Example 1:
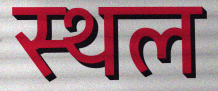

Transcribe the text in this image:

स्थल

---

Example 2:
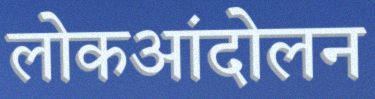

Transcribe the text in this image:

लोकआंदोलन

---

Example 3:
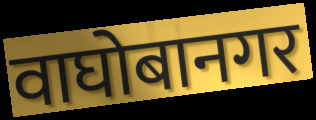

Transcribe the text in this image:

वाघोबानगर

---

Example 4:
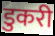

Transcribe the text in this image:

डुकरी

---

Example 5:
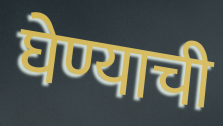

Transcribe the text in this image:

घेण्याची